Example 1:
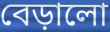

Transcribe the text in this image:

বেড়ালো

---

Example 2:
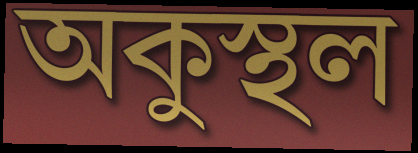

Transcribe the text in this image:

অকুস্থল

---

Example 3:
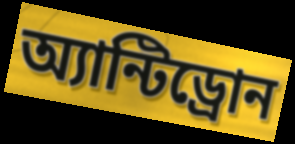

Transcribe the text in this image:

অ্যান্টিড্রোন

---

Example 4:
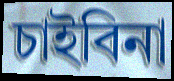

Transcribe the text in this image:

চাইবিনা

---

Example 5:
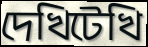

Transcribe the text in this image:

দেখিটেখি